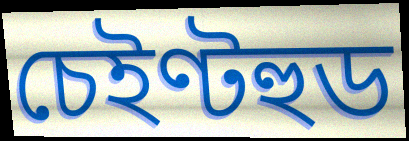
চেইণ্টহুড